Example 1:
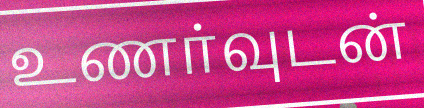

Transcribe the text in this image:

உணர்வுடன்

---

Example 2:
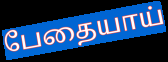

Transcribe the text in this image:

பேதையாய்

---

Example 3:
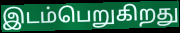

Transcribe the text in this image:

இடம்பெறுகிறது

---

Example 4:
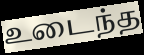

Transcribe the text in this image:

உடைந்த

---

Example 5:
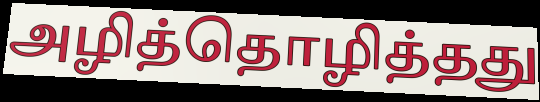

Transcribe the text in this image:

அழித்தொழித்தது